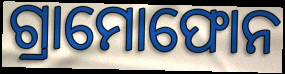
ଗ୍ରାମୋଫୋନ